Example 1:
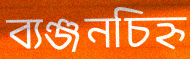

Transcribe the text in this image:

ব্যঞ্জনচিহ্ন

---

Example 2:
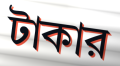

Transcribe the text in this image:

টাকার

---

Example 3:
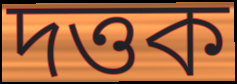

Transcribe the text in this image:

দত্তক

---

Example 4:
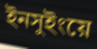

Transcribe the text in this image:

ইনসুইংয়ে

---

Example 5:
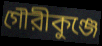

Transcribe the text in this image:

গৌরীকুঞ্জে